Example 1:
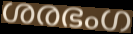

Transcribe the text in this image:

ശരഭംഗ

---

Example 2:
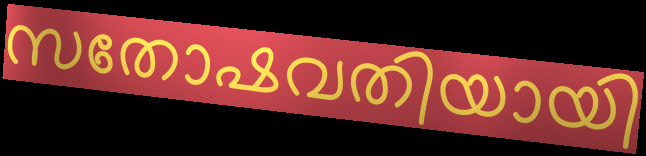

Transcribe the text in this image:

സതോഷവതിയായി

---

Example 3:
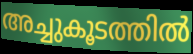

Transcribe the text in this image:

അച്ചുകൂടത്തിൽ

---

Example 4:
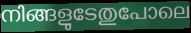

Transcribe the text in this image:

നിങ്ങളുടേതുപോലെ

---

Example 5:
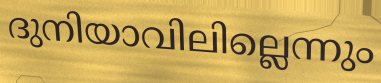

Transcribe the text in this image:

ദുനിയാവിലില്ലെന്നും